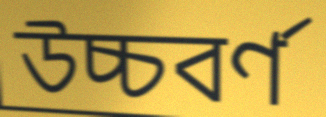
উচ্চবৰ্ণ